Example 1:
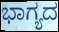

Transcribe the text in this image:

ಭಾಗ್ಯದ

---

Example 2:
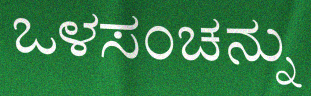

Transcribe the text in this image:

ಒಳಸಂಚನ್ನು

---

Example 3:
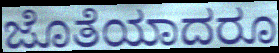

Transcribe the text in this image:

ಜೊತೆಯಾದರೂ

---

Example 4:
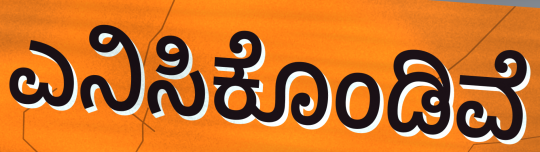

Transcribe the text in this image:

ಎನಿಸಿಕೊಂಡಿವೆ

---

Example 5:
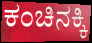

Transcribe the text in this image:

ಕಂಚಿನಕ್ಕಿ